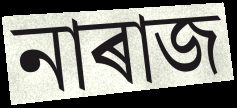
নাৰাজ